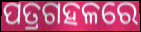
ପତ୍ରଗହଳରେ